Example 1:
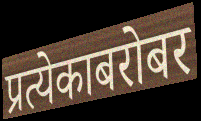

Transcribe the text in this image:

प्रत्येकाबरोबर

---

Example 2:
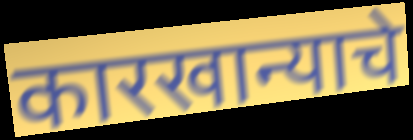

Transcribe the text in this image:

कारखान्याचे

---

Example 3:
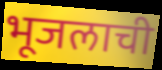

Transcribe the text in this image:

भूजलाची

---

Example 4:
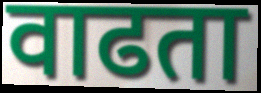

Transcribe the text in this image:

वाढता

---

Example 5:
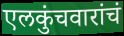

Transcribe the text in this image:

एलकुंचवारांचं